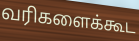
வரிகளைக்கூட